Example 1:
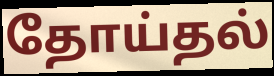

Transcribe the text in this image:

தோய்தல்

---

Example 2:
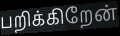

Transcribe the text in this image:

பறிக்கிறேன்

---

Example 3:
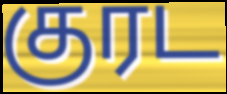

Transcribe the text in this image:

குரட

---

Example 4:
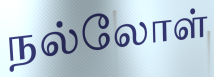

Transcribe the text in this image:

நல்லோள்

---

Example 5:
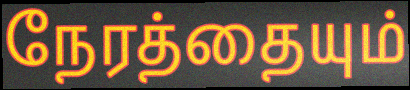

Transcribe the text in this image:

நேரத்தையும்